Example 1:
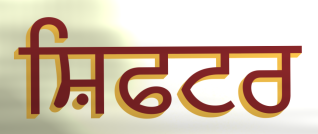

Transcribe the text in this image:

ਸ਼ਿਫਟਰ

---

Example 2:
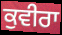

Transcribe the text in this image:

ਕੁਵੀਰਾ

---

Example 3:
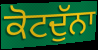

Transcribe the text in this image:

ਕੋਟਦੁੱਨਾ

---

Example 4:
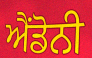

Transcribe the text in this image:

ਐਂਡੋਨੀ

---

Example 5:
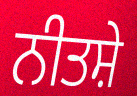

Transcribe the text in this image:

ਨੀਤਸ਼ੇ